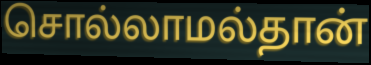
சொல்லாமல்தான்